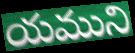
యముని